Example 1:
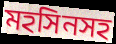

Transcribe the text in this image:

মহসিনসহ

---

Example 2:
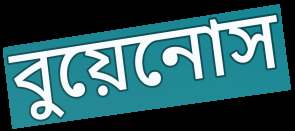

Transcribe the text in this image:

বুয়েনোস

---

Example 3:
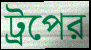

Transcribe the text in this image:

ট্রপের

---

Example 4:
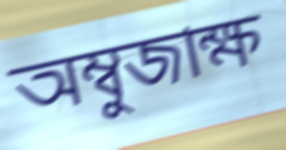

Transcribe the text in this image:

অম্বুজাক্ষ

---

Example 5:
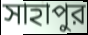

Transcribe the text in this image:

সাহাপুর